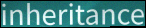
inheritance